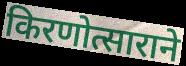
किरणोत्साराने